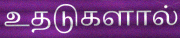
உதடுகளால்